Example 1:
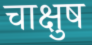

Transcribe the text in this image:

चाक्षुष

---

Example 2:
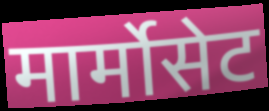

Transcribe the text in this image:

मार्मोसेट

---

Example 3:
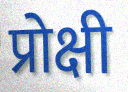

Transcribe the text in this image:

प्रोक्षी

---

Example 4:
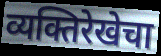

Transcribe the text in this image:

व्यक्तिरेखेचा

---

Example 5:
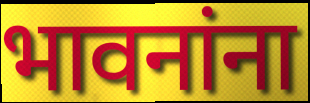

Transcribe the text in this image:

भावनांना